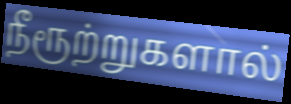
நீரூற்றுகளால்